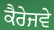
ਕੈਰੇਜਵੇ